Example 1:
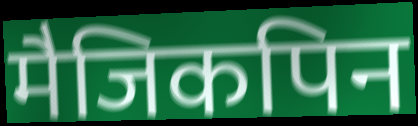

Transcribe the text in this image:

मैजिकपिन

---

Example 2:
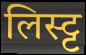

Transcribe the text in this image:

लिस्ट्ट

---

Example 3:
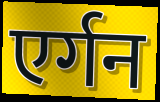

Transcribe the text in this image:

एर्गन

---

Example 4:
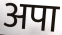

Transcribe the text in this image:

अपा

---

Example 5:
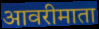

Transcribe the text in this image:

आवरीमाता